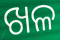
ଖଳ